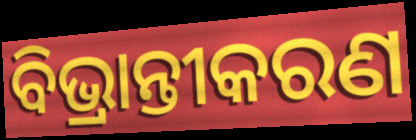
ବିଭ୍ରାନ୍ତୀକରଣ